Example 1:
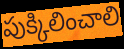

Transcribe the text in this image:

పుక్కిలించాలి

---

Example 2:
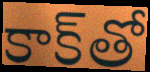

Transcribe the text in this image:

కాక్‌తో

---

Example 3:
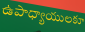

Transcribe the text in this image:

ఉపాధ్యాయులకూ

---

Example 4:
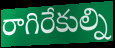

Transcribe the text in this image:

రాగిరేకుల్ని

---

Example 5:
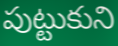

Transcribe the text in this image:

పుట్టుకుని